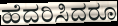
ಹೆದರಿಸಿದರೂ